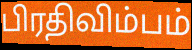
பிரதிவிம்பம்